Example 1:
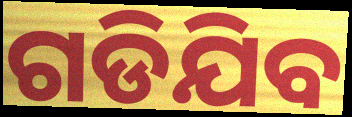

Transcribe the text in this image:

ଗଡିଯିବ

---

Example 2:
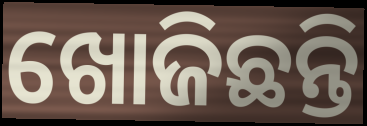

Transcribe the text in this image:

ଖୋଜିଛନ୍ତି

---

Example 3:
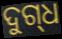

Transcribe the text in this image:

ଦୁଗ୍‌ଧ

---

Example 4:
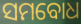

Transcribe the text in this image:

ସମବୋଧ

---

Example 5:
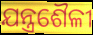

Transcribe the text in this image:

ଯନ୍ତ୍ରଶୈଳୀ